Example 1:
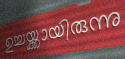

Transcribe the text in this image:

ഉച്ചയ്ക്കായിരുന്നു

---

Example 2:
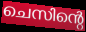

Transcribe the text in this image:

ചെസിന്റെ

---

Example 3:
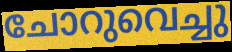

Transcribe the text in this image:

ചോറുവെച്ചു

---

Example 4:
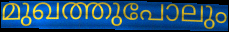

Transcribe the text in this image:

മുഖത്തുപോലും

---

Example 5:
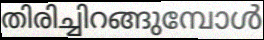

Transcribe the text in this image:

തിരിച്ചിറങ്ങുമ്പോൾ